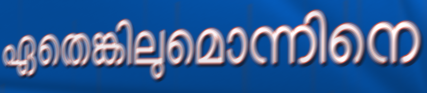
ഏതെങ്കിലുമൊന്നിനെ